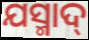
ଯସ୍ମାଦ୍